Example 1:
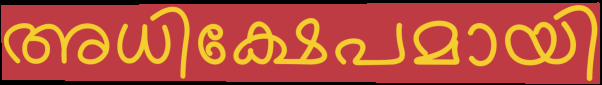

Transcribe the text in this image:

അധിക്ഷേപമായി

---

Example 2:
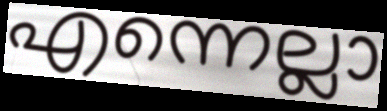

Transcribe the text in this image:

എന്നെല്ലാ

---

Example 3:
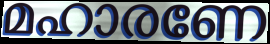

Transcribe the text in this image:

മഹാരണേ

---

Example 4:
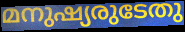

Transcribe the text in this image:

മനുഷ്യരുടേതു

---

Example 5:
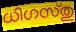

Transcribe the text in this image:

ധിഗസ്തു